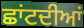
ਛਾਂਟਦੀਆਂ